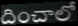
దించాలో